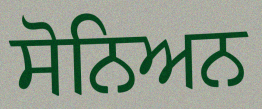
ਸੋਨਿਅਨ